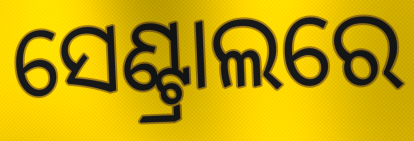
ସେଣ୍ଟ୍ରାଲରେ